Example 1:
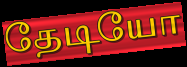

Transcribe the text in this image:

தேடியோ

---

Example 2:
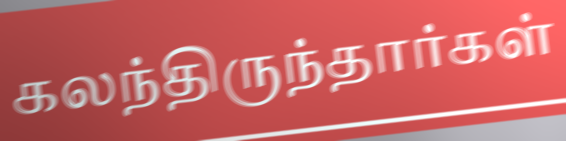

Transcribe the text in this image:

கலந்திருந்தார்கள்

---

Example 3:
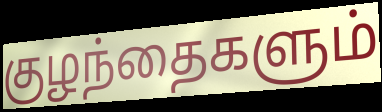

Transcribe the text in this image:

குழந்தைகளும்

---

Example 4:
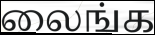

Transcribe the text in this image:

லைங்க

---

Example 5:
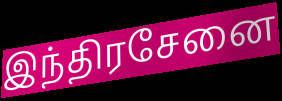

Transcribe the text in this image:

இந்திரசேனை